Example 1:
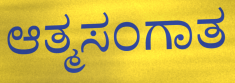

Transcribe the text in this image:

ಆತ್ಮಸಂಗಾತ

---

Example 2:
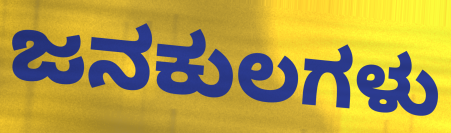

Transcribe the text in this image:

ಜನಕುಲಗಳು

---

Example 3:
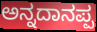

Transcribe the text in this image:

ಅನ್ನದಾನಪ್ಪ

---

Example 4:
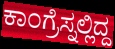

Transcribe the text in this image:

ಕಾಂಗ್ರೆಸ್ನಲ್ಲಿದ್ದ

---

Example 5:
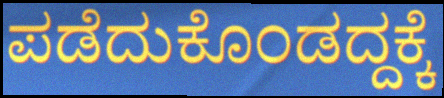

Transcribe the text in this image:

ಪಡೆದುಕೊಂಡದ್ದಕ್ಕೆ